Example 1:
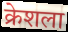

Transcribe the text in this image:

क्रेशला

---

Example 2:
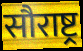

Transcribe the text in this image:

सौराष्ट्र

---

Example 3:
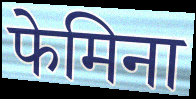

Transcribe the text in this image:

फेमिना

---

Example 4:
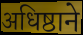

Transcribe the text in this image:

अधिष्ठाने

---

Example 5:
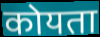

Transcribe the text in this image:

कोयता